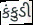
કંકુડી